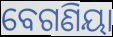
ବେଗଣିୟା